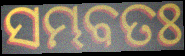
ସମ୍ଭବତଃ